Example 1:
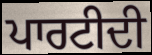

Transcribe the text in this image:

ਪਾਰਟੀਦੀ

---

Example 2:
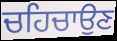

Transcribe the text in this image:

ਚਹਿਚਾਉਣ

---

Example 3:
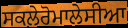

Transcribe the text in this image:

ਸਕਲੇਰੋਮਾਲੇਸੀਆ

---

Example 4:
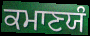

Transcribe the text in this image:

ਕਮਾਣਯੰ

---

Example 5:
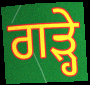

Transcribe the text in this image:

ਗੜ੍ਹੇ